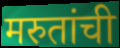
मरुतांची